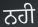
ਨਹੀ